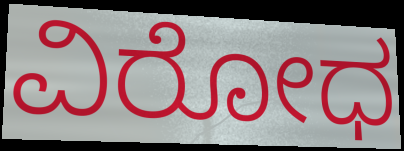
ವಿರೋಧ